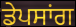
ਡੇਪਸਾਂਗ